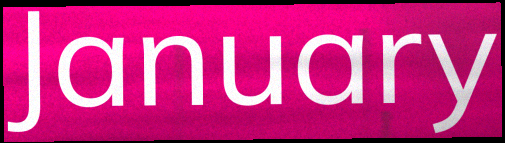
January